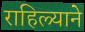
राहिल्याने